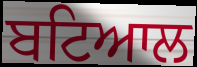
ਬਟਿਆਲ